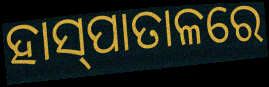
ହାସ୍‍ପାତାଳରେ